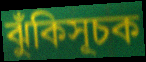
ঝুঁকিসূচক